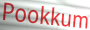
Pookkum